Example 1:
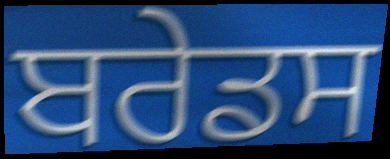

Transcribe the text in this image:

ਬਰੇਡਸ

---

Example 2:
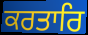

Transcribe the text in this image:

ਕਰਤਾਰਿ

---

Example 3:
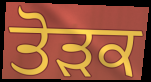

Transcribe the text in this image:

ਤੋੜਕ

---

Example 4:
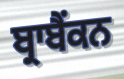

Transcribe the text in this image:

ਬ੍ਰਾਬੈਂਕਨ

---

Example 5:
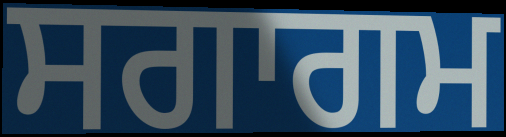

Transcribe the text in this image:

ਸਗਾਗਮ